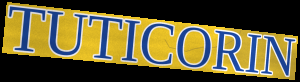
TUTICORIN